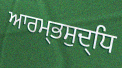
ਆਰਮ੍ਭਸੁਦ੍ਧਿ